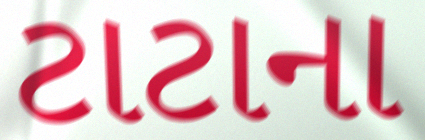
ટાટાના